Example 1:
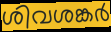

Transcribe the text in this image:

ശിവശങ്കർ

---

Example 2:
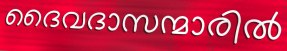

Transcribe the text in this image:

ദൈവദാസന്മാരിൽ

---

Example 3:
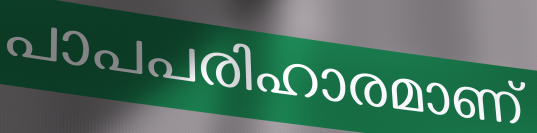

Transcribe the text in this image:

പാപപരിഹാരമാണ്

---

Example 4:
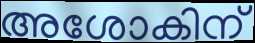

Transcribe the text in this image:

അശോകിന്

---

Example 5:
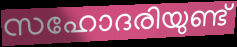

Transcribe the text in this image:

സഹോദരിയുണ്ട്